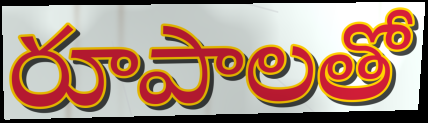
రూపాలతో